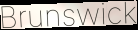
Brunswick